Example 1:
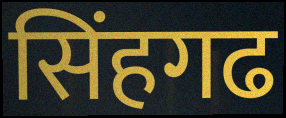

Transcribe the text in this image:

सिंहगढ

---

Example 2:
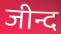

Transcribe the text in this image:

जीन्द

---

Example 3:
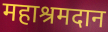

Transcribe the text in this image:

महाश्रमदान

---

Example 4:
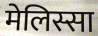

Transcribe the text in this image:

मेलिस्सा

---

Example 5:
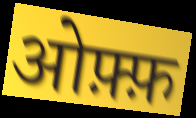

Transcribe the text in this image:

ओफ़्फ़